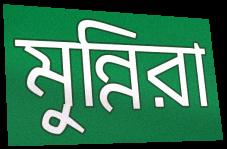
মুন্নিরা